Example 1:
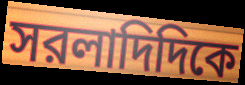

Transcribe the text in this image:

সরলাদিদিকে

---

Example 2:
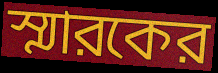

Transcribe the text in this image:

স্মারকের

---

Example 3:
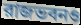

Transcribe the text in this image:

রাজভবনও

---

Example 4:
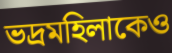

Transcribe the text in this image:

ভদ্রমহিলাকেও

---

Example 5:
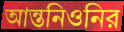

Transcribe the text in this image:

আন্তনিওনির